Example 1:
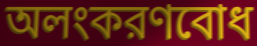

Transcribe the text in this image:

অলংকরণবোধ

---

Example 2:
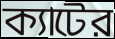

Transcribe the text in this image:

ক্যাটের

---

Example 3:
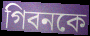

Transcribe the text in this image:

গিবনকে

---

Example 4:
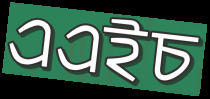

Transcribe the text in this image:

এএইচ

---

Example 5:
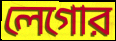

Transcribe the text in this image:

লেগোর